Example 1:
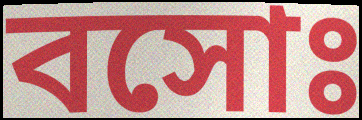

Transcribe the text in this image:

বসোঃ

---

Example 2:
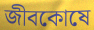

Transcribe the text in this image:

জীবকোষে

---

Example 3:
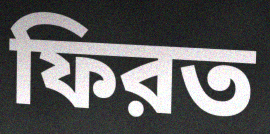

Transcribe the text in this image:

ফিরত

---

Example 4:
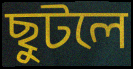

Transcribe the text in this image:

ছুটলে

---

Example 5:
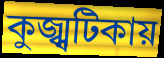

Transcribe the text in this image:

কুজ্ঝ্বটিকায়